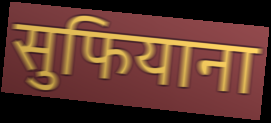
सुफियाना